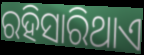
ରହିସାରିଥାଏ